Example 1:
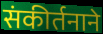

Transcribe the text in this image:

संकीर्तनाने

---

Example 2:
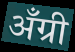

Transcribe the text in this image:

अँग्री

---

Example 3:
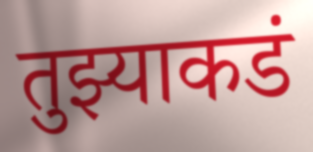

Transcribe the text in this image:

तुझ्याकडं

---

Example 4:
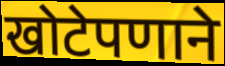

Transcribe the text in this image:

खोटेपणाने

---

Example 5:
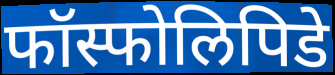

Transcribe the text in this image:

फॉस्फोलिपिडे